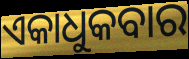
ଏକାଧୁକବାର